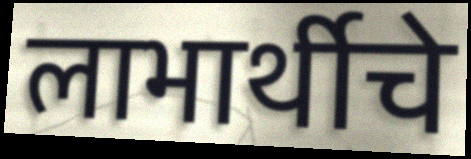
लाभार्थीचे